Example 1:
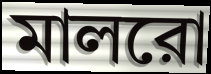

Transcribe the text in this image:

মালরো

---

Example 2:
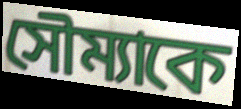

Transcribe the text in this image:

সৌম্যাকে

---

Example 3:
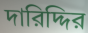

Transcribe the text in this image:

দারিদ্দির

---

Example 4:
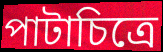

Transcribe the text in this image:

পাটাচিত্রে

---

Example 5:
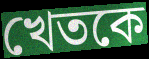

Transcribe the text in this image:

খেতকে